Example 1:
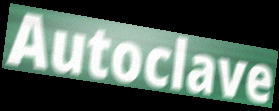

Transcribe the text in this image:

Autoclave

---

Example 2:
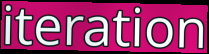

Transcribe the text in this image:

iteration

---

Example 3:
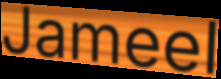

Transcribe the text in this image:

Jameel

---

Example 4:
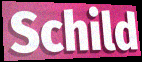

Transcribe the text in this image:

Schild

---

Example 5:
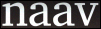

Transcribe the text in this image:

naav